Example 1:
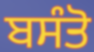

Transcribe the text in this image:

ਬਸੰਤੋ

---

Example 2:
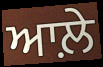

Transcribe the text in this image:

ਆਲ਼ੇ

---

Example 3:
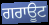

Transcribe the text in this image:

ਗਰਾਊਟ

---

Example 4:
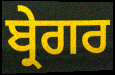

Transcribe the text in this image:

ਬ੍ਰੇਗਰ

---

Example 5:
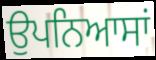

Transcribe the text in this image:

ਉਪਨਿਆਸਾਂ